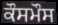
ਕੌਸਮੌਸ